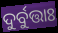
ଦୁର୍ବୁତ୍ତାଃ